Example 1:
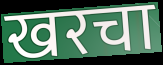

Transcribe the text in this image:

खरचा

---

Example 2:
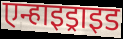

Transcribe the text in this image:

एन्हाइड्राइड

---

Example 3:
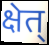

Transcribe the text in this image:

क्षेत्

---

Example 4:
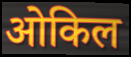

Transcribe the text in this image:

ओकिल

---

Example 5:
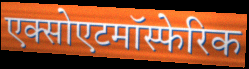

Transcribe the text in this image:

एक्सोएटमॉस्फेरिक